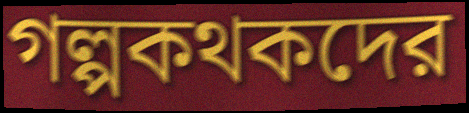
গল্পকথকদের